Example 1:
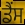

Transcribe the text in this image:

ਡੈਂਸ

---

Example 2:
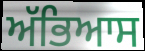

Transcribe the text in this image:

ਅੱਭਿਆਸ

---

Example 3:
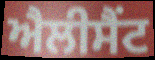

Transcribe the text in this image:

ਐਲੀਸੈਂਟ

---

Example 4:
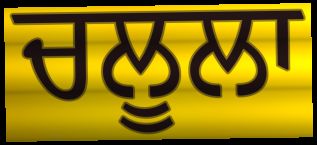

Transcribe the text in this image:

ਚਲੂਲਾ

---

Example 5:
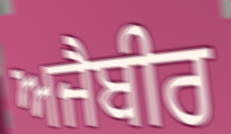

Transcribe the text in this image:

ਅਜੈਬੀਰ